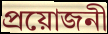
প্রয়োজনী